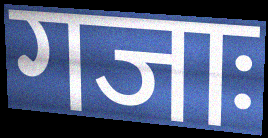
गजाः